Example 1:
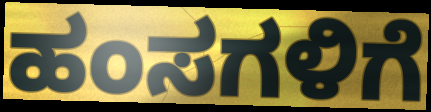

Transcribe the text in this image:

ಹಂಸಗಳಿಗೆ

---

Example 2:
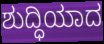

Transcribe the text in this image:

ಶುದ್ಧಿಯಾದ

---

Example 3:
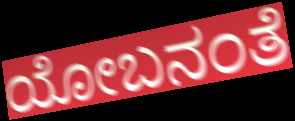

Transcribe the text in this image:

ಯೋಬನಂತೆ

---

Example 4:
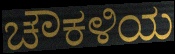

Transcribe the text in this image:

ಚೌಕಳಿಯ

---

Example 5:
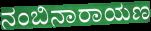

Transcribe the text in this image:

ನಂಬಿನಾರಾಯಣ